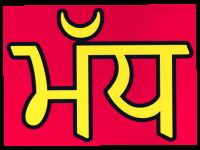
ਮੱਧ